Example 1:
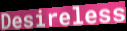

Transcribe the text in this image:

Desireless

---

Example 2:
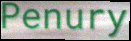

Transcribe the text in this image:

Penury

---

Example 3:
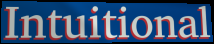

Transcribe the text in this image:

Intuitional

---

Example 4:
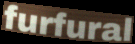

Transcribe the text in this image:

furfural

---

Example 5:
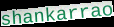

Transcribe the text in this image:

shankarrao